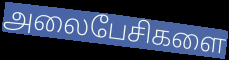
அலைபேசிகளை